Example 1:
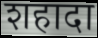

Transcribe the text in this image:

शहादा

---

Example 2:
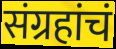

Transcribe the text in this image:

संग्रहांचं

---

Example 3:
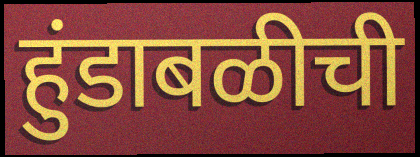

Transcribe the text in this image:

हुंडाबळीची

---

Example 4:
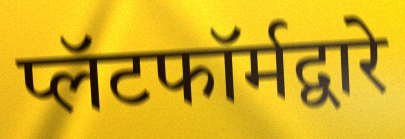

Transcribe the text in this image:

प्लॅटफॉर्मद्वारे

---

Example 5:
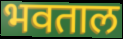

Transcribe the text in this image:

भवताल